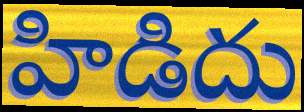
హిడిదు